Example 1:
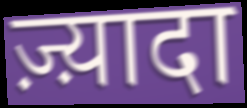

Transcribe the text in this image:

ज़्य़ादा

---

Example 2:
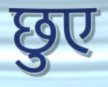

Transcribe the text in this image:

छुए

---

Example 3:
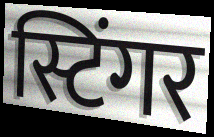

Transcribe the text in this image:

स्टिंगर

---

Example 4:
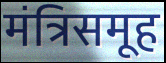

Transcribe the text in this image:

मंत्रिसमूह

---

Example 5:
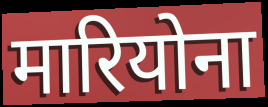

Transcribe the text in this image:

मारियोना